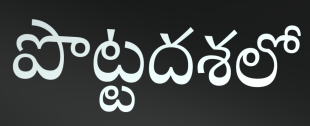
పొట్టదశలో